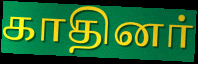
காதினர்